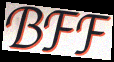
BFF